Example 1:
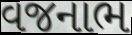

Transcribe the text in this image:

વજનાભ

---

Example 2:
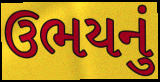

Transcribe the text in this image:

ઉભયનું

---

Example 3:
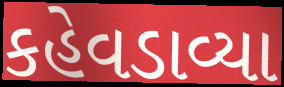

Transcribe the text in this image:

કહેવડાવ્યા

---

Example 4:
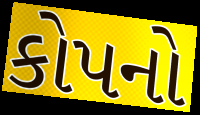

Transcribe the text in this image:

કોપનો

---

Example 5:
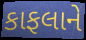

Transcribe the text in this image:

કાફલાને